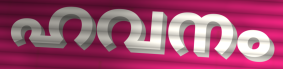
ഹവനം